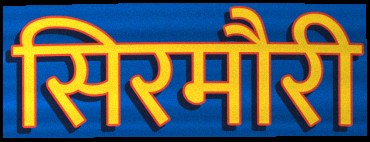
सिरमौरी